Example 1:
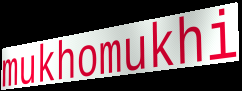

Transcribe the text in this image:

mukhomukhi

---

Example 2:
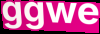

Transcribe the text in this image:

ggwe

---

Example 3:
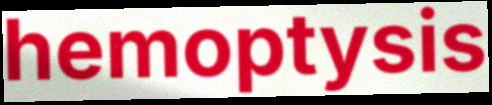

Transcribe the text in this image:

hemoptysis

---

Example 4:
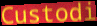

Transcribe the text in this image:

Custodi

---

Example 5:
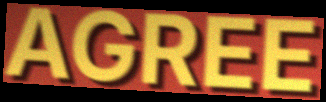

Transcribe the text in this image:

AGREE